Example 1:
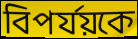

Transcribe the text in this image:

বিপর্যয়কে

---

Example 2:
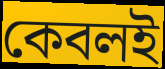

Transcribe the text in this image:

কেবলই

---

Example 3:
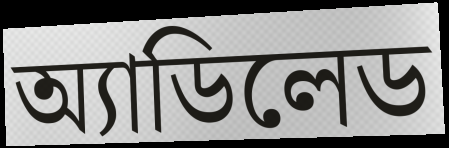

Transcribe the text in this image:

অ্যাডিলেড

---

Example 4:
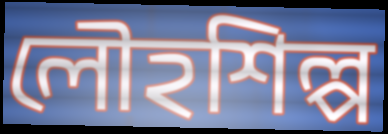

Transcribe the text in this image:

লৌহশিল্প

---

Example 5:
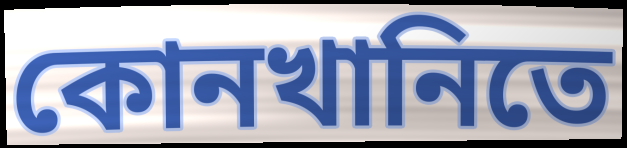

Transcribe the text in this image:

কোনখানিতে